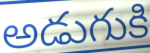
అడుగుకి